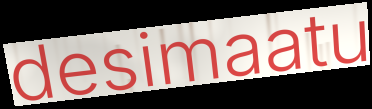
desimaatu